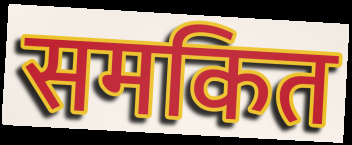
समकित